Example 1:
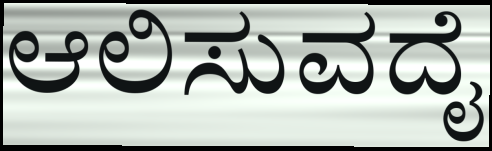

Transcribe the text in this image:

ಆಲಿಸುವದೈ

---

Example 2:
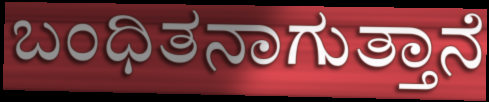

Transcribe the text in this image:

ಬಂಧಿತನಾಗುತ್ತಾನೆ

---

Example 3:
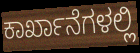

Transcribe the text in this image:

ಕಾರ್ಖಾನೆಗಳಲ್ಲಿ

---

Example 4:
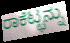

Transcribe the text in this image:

ರಾಕೆಟ್ಟನ್ನು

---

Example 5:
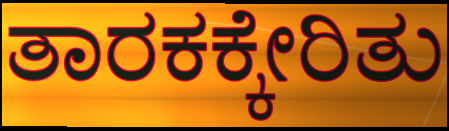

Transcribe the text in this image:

ತಾರಕಕ್ಕೇರಿತು